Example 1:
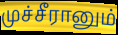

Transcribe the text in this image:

முச்சீரானும்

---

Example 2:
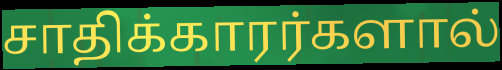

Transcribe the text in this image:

சாதிக்காரர்களால்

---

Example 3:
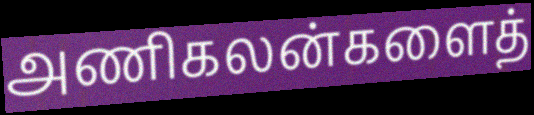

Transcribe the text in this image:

அணிகலன்களைத்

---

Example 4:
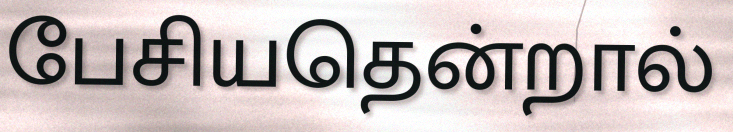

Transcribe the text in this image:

பேசியதென்றால்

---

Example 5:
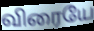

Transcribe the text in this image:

விரையே